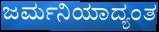
ಜರ್ಮನಿಯಾದ್ಯಂತ